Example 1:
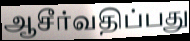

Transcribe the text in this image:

ஆசீர்வதிப்பது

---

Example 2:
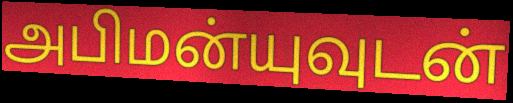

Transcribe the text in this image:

அபிமன்யுவுடன்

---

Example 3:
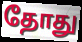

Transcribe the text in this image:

தோது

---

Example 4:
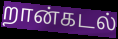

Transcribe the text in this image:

றான்கடல்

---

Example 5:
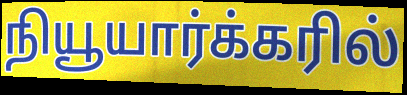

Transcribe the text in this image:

நியூயார்க்கரில்